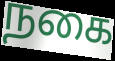
நகை